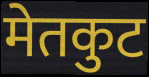
मेतकुट